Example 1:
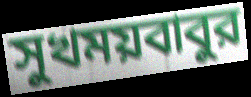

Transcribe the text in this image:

সুখময়বাবুর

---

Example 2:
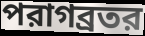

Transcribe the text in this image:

পরাগব্রতর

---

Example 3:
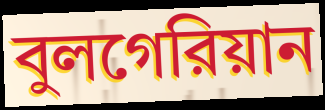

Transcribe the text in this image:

বুলগেরিয়ান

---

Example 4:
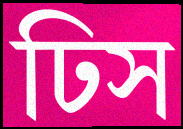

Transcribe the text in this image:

ঢিস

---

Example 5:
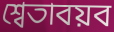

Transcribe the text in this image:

শ্বেতাবয়ব